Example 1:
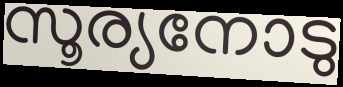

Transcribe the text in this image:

സൂര്യനോടു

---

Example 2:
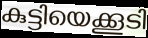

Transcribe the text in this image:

കുട്ടിയെക്കൂടി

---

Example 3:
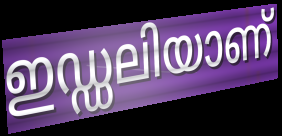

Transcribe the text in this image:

ഇഡ്ഡലിയാണ്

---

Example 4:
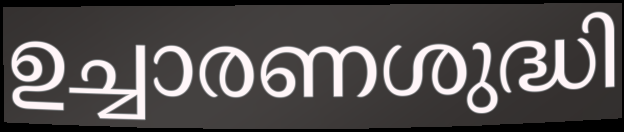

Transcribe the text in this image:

ഉച്ചാരണശുദ്ധി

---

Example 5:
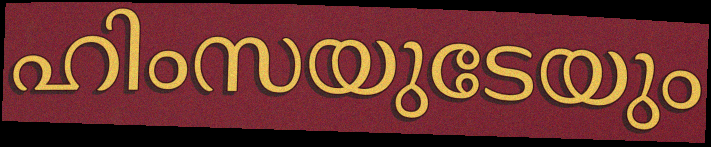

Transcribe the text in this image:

ഹിംസയുടേയും